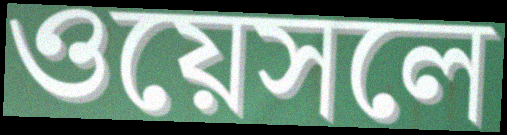
ওয়েসলে